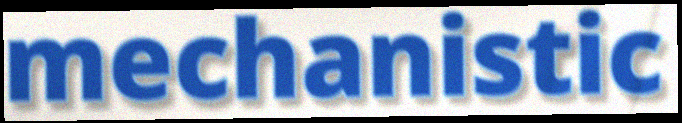
mechanistic